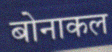
बोनाकल